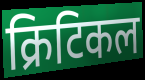
क्रिटिकल